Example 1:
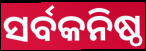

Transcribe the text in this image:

ସର୍ବକନିଷ୍ଠ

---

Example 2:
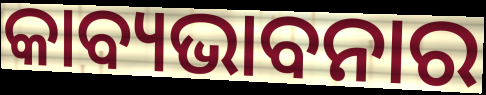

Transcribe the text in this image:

କାବ୍ୟଭାବନାର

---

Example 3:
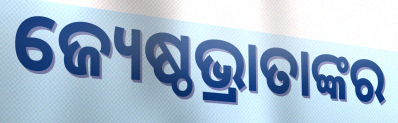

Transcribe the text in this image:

ଜ୍ୟେଷ୍ଠଭ୍ରାତାଙ୍କର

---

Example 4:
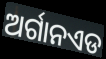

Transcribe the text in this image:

ଅର୍ଗାନଏଡ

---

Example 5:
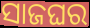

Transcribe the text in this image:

ସାଜଘର